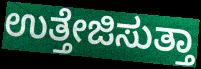
ಉತ್ತೇಜಿಸುತ್ತಾ